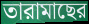
তারামাছের